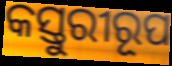
କସ୍ତୁରୀରୂପ